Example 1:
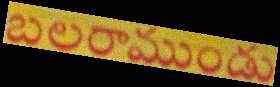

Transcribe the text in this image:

బలరాముండు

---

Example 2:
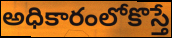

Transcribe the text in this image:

అధికారంలోకొస్తే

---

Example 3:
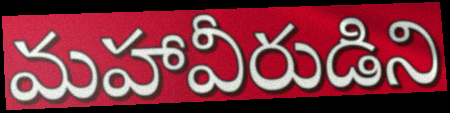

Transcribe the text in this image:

మహావీరుడిని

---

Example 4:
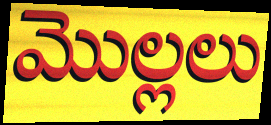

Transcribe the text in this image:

మొల్లలు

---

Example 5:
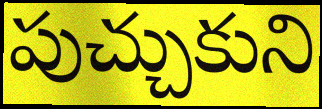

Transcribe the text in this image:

పుచ్చుకుని